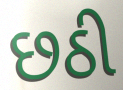
છઠી